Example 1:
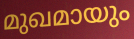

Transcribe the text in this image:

മുഖമായും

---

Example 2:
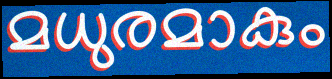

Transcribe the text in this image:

മധുരമാകും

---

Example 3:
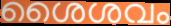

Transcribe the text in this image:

ശൈശവം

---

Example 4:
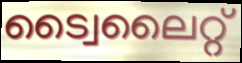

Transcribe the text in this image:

ട്വൈലൈറ്റ്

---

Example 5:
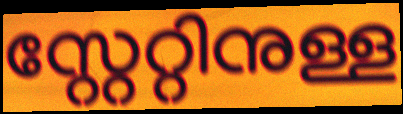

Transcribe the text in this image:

സ്റ്റേറ്റിനുള്ള